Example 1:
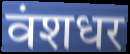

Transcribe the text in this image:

वंशधर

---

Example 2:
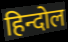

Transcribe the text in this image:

हिन्दोल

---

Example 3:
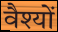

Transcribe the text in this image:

वैश्‍यों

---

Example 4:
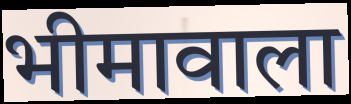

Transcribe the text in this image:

भीमावाला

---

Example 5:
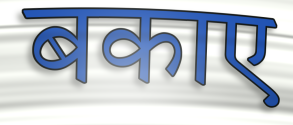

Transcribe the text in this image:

बकाए